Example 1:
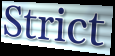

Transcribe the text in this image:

Strict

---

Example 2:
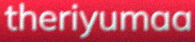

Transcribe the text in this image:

theriyumaa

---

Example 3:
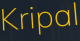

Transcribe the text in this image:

Kripal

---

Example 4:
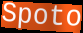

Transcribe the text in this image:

Spoto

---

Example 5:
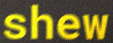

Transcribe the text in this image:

shew